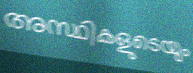
അസ്ഥികളുടെയും